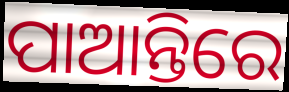
ପାଆନ୍ତିରେ